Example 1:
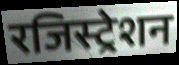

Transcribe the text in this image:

रजिस्ट्रेशन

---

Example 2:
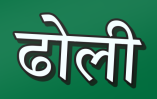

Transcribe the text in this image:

ढोली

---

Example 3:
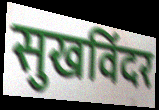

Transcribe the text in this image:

सुखविंदर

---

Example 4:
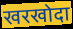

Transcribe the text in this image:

खरखोदा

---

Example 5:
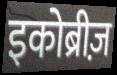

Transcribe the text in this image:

इकोब्रीज़